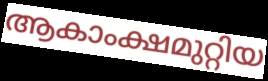
ആകാംക്ഷമുറ്റിയ